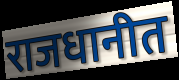
राजधानीत